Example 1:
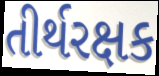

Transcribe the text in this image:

તીર્થરક્ષક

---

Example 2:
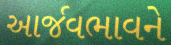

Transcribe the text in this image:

આર્જવભાવને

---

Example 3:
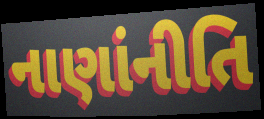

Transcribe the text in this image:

નાણાંનીતિ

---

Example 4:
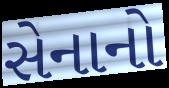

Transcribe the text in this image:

સેનાનો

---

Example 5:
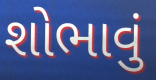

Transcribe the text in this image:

શોભાવું